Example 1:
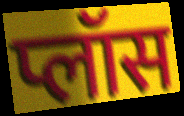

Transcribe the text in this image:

प्लॉस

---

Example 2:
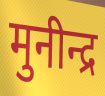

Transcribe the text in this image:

मुनीन्द्र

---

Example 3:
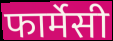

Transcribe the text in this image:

फार्मेसी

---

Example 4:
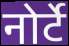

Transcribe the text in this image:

नोर्टे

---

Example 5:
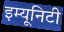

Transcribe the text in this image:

इम्यूनिटी